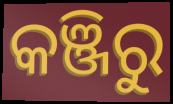
କଞ୍ଜିରୁ